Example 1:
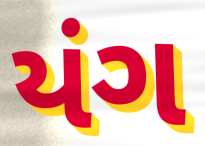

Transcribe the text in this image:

યંગ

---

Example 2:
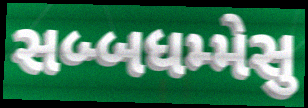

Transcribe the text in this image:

સબ્બધમ્મેસુ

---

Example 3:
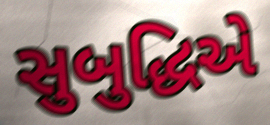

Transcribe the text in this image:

સુબુદ્ધિએ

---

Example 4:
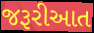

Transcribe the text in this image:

જરૂરીઆત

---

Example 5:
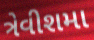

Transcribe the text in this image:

ત્રેવીશમા